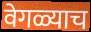
वेगळ्याच